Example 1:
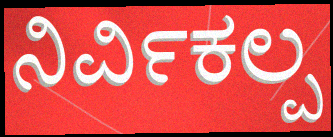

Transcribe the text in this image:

ನಿರ್ವಿಕಲ್ಪ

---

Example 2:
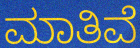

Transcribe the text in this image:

ಮಾತಿವೆ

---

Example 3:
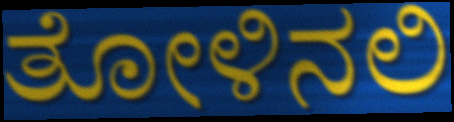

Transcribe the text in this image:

ತೋಳಿನಲಿ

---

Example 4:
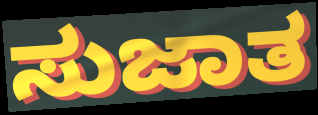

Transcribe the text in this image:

ಸುಜಾತ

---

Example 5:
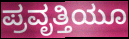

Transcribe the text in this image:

ಪ್ರವೃತ್ತಿಯೂ